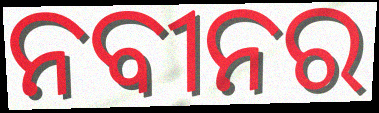
ନବୀନର